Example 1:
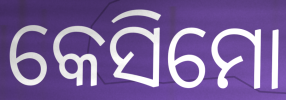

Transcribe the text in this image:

କେସିମୋ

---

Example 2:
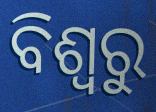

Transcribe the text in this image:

ବିଶ୍ଵରୁ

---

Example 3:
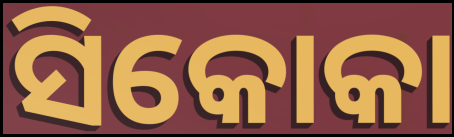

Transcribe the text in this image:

ସିକୋକା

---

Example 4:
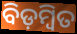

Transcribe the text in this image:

ବିଡ଼ମ୍ଵିତ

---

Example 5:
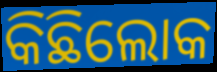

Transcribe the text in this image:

କିଛିଲୋକ